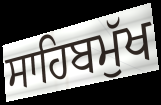
ਸਾਹਿਬਮੁੱਖ